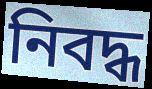
নিবদ্ধ